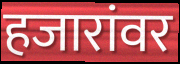
हजारांवर